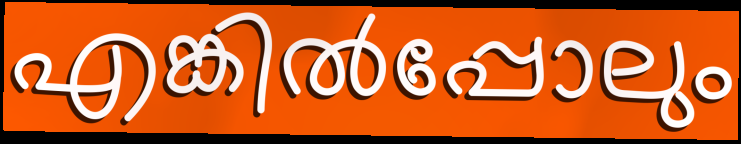
എങ്കിൽപ്പോലും